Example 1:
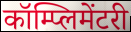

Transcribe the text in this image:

कॉम्प्लिमेंटरी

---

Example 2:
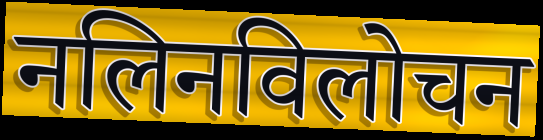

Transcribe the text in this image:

नलिनविलोचन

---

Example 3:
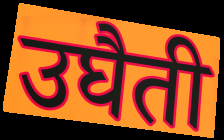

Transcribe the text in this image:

उघैती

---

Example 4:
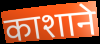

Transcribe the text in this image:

काशाने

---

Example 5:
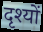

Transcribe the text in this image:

दृश्यों